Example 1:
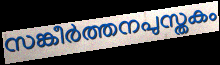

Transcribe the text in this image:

സങ്കീർത്തനപുസ്തകം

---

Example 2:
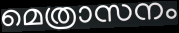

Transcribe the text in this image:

മെത്രാസനം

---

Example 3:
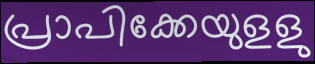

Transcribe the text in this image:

പ്രാപിക്കേയുളളു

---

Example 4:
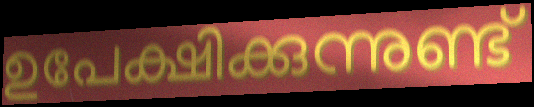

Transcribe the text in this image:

ഉപേക്ഷിക്കുന്നുണ്ട്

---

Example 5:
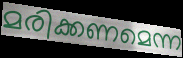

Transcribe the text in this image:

മരിക്കണമെന്ന